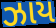
ઝાય